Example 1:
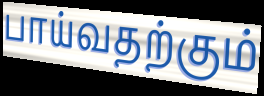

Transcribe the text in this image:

பாய்வதற்கும்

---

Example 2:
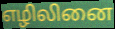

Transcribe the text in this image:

எழிலினை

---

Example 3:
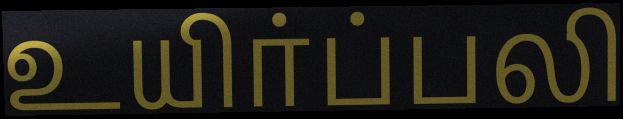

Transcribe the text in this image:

உயிர்ப்பலி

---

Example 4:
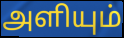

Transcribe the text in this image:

அளியும்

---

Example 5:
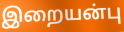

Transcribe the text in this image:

இறையன்பு